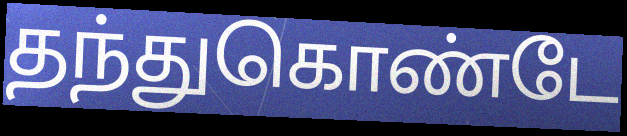
தந்துகொண்டே